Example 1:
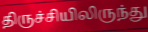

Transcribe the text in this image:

திருச்சியிலிருந்து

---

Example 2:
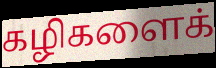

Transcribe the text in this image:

கழிகளைக்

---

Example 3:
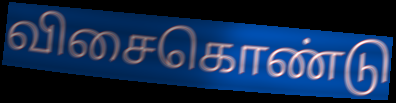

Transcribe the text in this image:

விசைகொண்டு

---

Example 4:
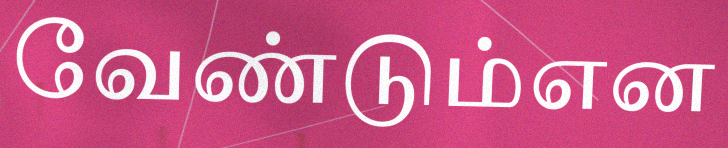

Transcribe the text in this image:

வேண்டும்என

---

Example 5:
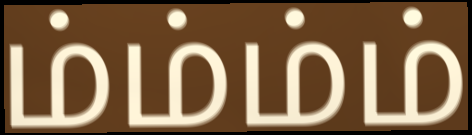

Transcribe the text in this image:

ம்ம்ம்ம்